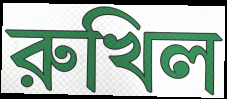
রুখিল